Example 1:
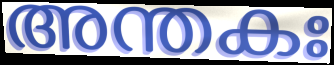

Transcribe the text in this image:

അന്തകഃ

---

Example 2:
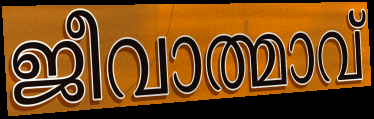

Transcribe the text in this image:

ജീവാത്മാവ്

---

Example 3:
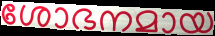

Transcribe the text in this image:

ശോഭനമായ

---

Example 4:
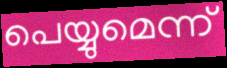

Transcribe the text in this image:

പെയ്യുമെന്ന്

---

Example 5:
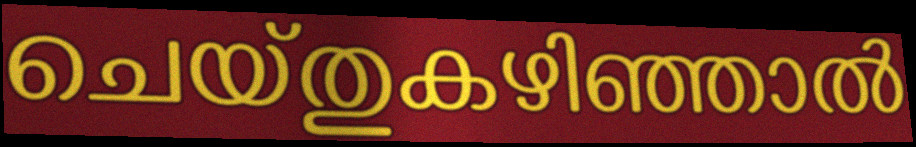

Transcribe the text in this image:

ചെയ്തുകഴിഞ്ഞാൽ